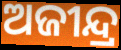
ଅଜୀନ୍ଦ୍ର